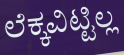
ಲೆಕ್ಕವಿಟ್ಟಿಲ್ಲ